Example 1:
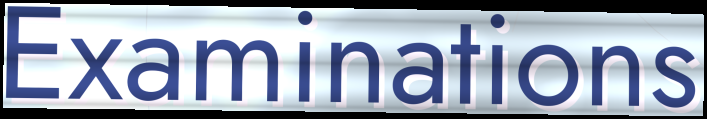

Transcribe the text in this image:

Examinations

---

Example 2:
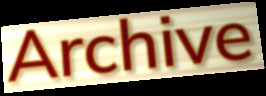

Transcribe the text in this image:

Archive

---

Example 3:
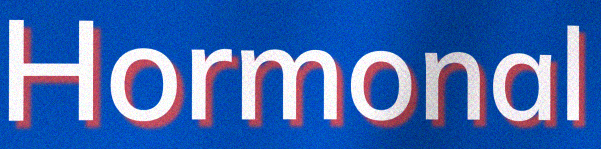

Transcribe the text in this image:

Hormonal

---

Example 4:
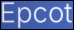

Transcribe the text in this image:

Epcot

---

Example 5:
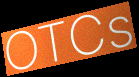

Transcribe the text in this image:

OTCs